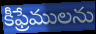
కీఫ్రేములను